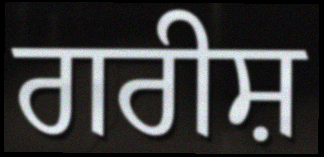
ਗਰੀਸ਼